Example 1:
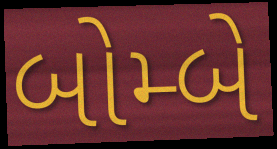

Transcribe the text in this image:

બોમ્બે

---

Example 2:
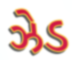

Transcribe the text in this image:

ઝેડ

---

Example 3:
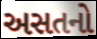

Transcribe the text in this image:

અસતનો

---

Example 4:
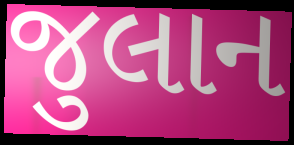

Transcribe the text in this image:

જુલાન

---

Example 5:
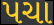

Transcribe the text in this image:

પચા